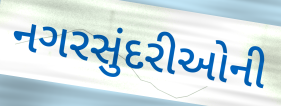
નગરસુંદરીઓની